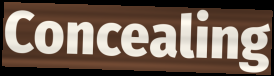
Concealing